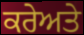
ਕਰੇਅਤੇ